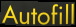
Autofill